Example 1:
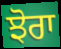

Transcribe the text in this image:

ਝੋਰਾ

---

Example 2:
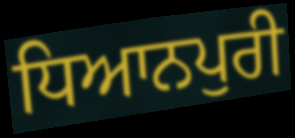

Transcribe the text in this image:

ਧਿਆਨਪੁਰੀ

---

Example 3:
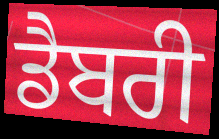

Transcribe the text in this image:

ਡੈਬਰੀ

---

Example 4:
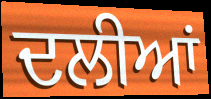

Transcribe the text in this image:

ਦਲੀਆਂ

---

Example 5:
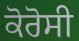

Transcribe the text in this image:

ਕੋਰੋਸੀ